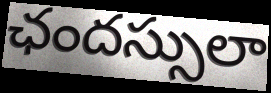
ఛందస్సులా